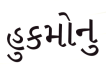
હુકમોનુ